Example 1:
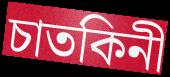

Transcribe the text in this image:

চাতকিনী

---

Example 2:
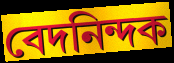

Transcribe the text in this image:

বেদনিন্দক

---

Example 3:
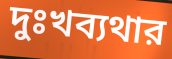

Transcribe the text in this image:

দুঃখব্যথার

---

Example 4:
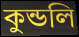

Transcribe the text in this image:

কুন্ডলি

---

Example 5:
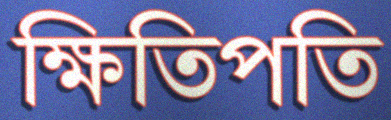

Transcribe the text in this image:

ক্ষিতিপতি